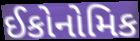
ઈકોનોમિક